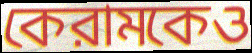
কেরামকেও